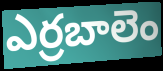
ఎర్రబాలెం